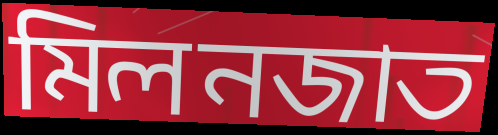
মিলনজাত